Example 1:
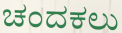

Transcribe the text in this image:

ಚಂದಕಲು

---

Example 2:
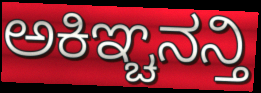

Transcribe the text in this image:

ಅಕಿಞ್ಚನನ್ತಿ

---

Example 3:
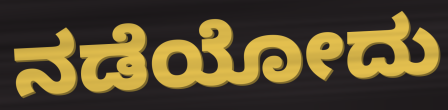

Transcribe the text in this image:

ನಡೆಯೋದು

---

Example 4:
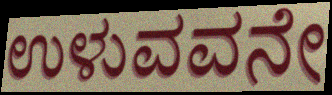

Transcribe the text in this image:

ಉಳುವವನೇ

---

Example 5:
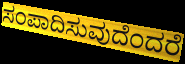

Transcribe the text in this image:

ಸಂಪಾದಿಸುವುದೆಂದರೆ